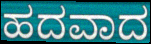
ಹದವಾದ